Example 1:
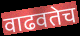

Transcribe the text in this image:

वाढवतेच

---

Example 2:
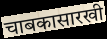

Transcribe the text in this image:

चाबकासारखी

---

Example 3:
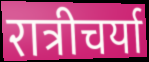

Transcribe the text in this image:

रात्रीचर्या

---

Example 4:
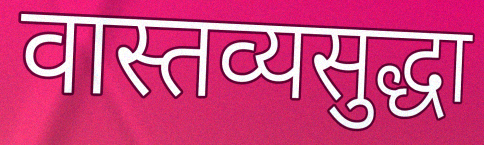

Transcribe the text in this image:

वास्तव्यसुद्धा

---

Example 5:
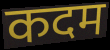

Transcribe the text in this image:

कदम